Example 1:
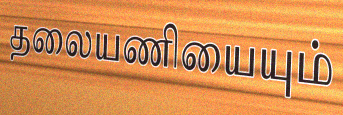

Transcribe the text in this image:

தலையணியையும்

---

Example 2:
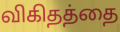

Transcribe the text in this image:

விகிதத்தை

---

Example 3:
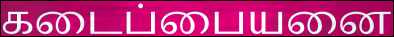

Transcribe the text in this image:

கடைப்பையனை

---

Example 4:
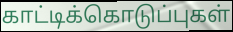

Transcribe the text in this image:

காட்டிக்கொடுப்புகள்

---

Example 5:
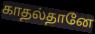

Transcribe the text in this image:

காதல்தானே